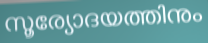
സൂര്യോദയത്തിനും